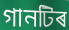
গানটিৰ